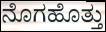
ನೊಗಹೊತ್ತು